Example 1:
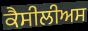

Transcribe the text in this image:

ਕੈਸੀਲੀਅਸ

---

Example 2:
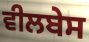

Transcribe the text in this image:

ਵੀਲਬੇਸ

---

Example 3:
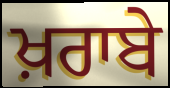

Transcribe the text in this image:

ਖ਼ਰਾਬੇ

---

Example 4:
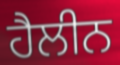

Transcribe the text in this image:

ਹੈਲੀਨ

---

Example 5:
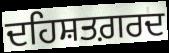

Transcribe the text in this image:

ਦਹਿਸ਼ਤਗ਼ਰਦ